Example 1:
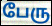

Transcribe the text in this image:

பேரு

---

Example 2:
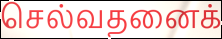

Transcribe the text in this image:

செல்வதனைக்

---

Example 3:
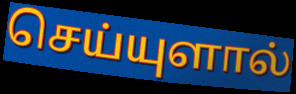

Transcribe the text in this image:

செய்யுளால்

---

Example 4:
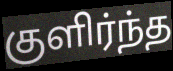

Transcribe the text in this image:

குளிர்ந்த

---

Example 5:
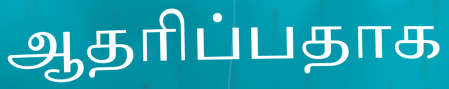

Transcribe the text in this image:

ஆதரிப்பதாக